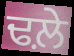
ਢਲ਼ੇ